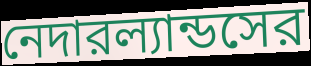
নেদারল্যান্ডসের